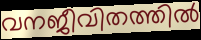
വനജീവിതത്തിൽ